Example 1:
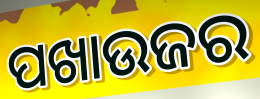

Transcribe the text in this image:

ପଖାଉଜର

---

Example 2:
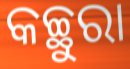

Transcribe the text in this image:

କଚ୍ଛୁରା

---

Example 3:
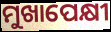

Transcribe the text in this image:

ମୁଖାପେକ୍ଷୀ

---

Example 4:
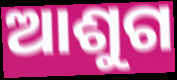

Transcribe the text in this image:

ଆଶୁଗ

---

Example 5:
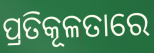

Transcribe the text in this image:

ପ୍ରତିକୂଳତାରେ